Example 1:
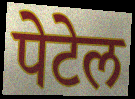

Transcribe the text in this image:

पेटेल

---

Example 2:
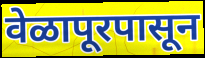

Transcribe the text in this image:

वेळापूरपासून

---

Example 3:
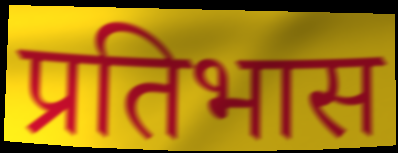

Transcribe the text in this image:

प्रतिभास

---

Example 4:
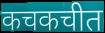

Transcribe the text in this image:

कचकचीत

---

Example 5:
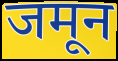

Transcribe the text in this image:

जमून